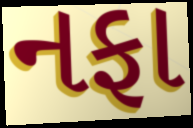
નફા